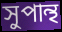
সুপান্থ